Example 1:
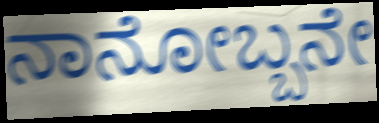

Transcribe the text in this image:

ನಾನೋಬ್ಬನೇ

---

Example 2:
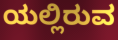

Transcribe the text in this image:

ಯಲ್ಲಿರುವ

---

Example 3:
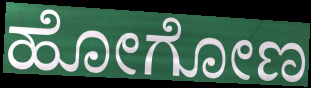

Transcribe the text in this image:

ಹೋಗೋಣ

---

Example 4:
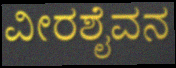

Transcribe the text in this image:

ವೀರಶೈವನ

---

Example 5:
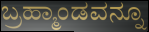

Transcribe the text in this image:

ಬ್ರಹ್ಮಾಂಡವನ್ನೂ